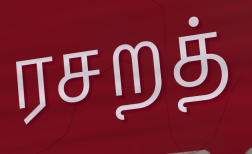
ரசறத்